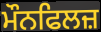
ਮੌਨਫਿਲਜ਼